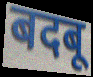
बदबू